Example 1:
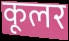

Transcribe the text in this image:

कूलर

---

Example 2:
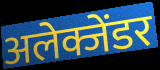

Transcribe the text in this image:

अलेक्जेंडर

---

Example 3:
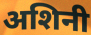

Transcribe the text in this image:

अशिनी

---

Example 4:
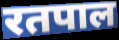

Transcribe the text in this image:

रतपाल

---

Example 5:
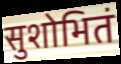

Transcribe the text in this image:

सुशोभितं